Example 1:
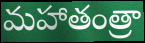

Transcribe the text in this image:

మహాతంత్రా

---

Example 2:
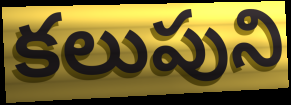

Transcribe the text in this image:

కలుపుని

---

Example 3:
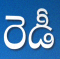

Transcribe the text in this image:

రెడీ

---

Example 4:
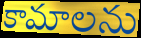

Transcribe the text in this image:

కామాలను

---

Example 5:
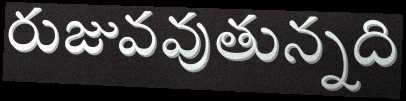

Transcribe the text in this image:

రుజువవుతున్నది